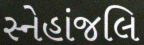
સ્નેહાંજલિ